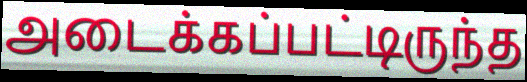
அடைக்கப்பட்டிருந்த